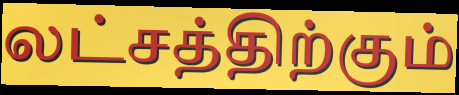
லட்சத்திற்கும்